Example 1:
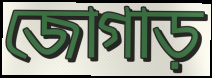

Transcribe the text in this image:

জোগাড়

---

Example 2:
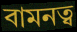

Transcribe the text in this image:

বামনত্ব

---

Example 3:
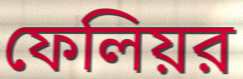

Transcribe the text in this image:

ফেলিয়র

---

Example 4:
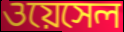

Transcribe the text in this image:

ওয়েসেল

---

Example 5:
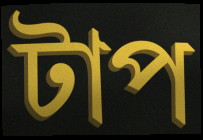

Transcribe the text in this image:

টাপ